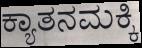
ಕ್ಯಾತನಮಕ್ಕಿ